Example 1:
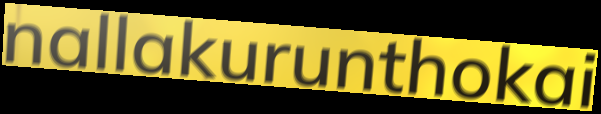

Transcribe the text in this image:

nallakurunthokai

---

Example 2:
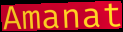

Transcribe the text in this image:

Amanat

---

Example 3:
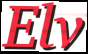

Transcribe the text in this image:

Elv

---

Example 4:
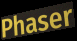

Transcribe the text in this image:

Phaser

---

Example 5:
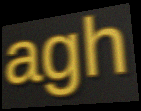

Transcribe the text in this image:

agh